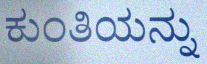
ಕುಂತಿಯನ್ನು